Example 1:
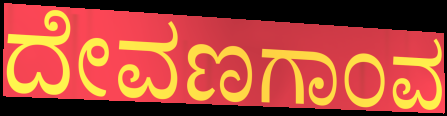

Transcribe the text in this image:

ದೇವಣಗಾಂವ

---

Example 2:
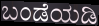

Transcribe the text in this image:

ಬಂಡೆಯಡಿ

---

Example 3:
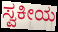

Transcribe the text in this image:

ಸ್ವಕೀಯ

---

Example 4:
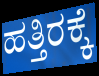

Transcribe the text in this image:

ಹತ್ತಿರಕ್ಕೆ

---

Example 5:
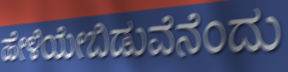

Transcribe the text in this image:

ಹೇಳಿಯೇಬಿಡುವೆನೆಂದು